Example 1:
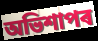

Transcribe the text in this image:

অভিশাপৰ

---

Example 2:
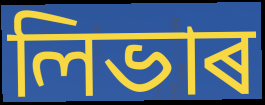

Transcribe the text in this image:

লিভাৰ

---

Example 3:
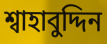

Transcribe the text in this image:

শ্বাহাবুদ্দিন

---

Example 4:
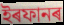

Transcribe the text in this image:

ইৰফানৰ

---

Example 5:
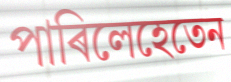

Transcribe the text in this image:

পাৰিলেহেতেন